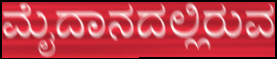
ಮೈದಾನದಲ್ಲಿರುವ